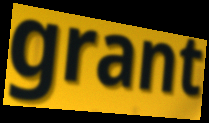
grant